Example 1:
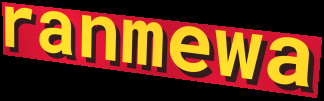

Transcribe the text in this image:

ranmewa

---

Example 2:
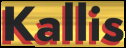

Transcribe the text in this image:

Kallis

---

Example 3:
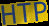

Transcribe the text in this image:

HTP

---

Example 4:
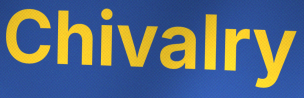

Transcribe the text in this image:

Chivalry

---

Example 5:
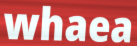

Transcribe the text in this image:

whaea